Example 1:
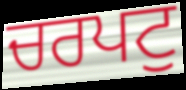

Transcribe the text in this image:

ਚਰਪਟੁ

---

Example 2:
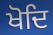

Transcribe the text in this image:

ਖੋਦਿ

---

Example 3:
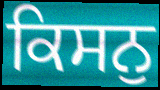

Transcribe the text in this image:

ਕਿਸਨੁ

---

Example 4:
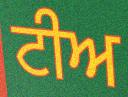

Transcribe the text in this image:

ਟੀਅ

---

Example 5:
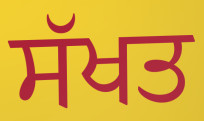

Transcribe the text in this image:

ਸੱਖਤ